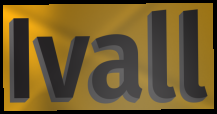
Ivall